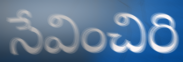
సేవించిరి